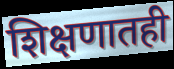
शिक्षणातही